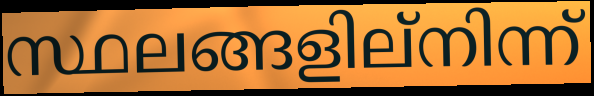
സ്ഥലങ്ങളില്നിന്ന്